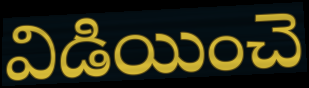
విడియించె